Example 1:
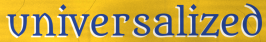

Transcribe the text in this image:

universalized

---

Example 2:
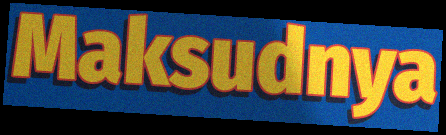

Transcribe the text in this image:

Maksudnya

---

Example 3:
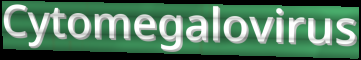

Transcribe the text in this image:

Cytomegalovirus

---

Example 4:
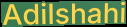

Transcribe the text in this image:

Adilshahi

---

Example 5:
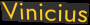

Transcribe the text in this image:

Vinicius